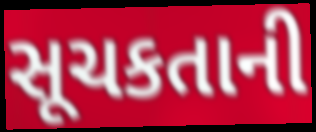
સૂચકતાની